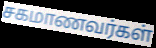
சகமாணவர்கள்